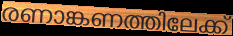
രണാങ്കണത്തിലേക്ക്